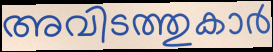
അവിടത്തുകാർ